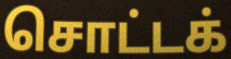
சொட்டக்